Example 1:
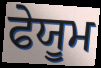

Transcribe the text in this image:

ਫੇਯੂਮ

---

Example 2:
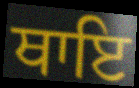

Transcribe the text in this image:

ਥਾਇ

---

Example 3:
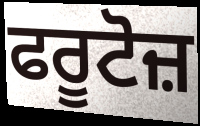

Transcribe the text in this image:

ਫਰੂਟੋਜ਼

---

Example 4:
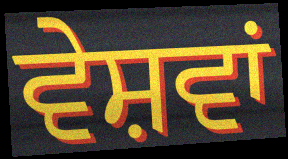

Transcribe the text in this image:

ਵੇਸ਼ਵਾਂ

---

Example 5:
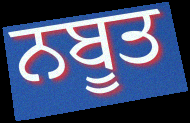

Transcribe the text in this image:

ਨਬੂਤ